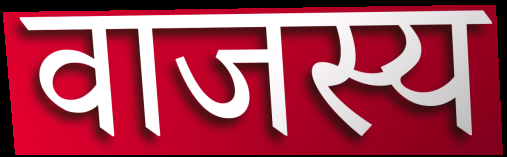
वाजस्य